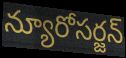
న్యూరోసర్జన్